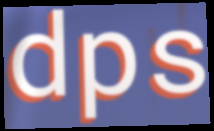
dps